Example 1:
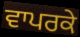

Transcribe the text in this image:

ਵਾਪਰਕੇ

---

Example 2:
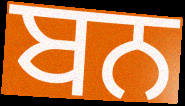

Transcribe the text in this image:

ਬਨ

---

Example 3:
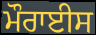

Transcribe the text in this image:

ਮੌਰਾਈਸ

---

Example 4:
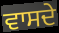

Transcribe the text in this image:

ਵਾਸਦੇ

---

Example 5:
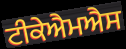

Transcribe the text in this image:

ਟੀਕੇਐਮਐਸ